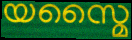
യസ്മൈ